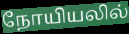
நோயியலில்